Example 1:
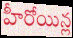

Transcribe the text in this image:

హీరోయిన్ల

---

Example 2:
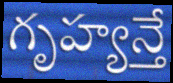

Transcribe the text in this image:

గృహ్యన్తే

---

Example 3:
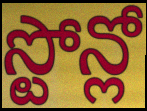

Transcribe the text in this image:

స్టోన్లో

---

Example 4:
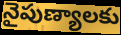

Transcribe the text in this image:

నైపుణ్యాలకు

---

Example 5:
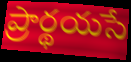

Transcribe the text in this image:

ప్రార్థయసే